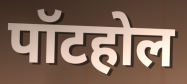
पॉटहोल